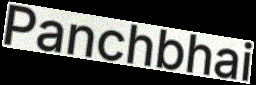
Panchbhai